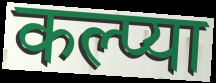
कल्प्या